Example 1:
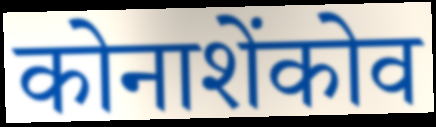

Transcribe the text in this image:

कोनाशेंकोव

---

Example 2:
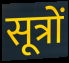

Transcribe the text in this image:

सूत्रों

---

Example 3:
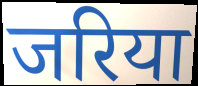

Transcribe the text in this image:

जरिया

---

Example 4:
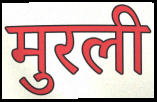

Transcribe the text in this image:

मुरली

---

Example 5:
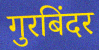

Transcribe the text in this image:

गुरबिंदर